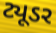
ટ્યૂડર